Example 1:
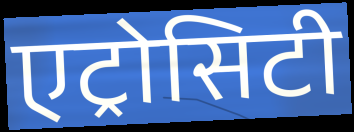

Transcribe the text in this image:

एट्रोसिटी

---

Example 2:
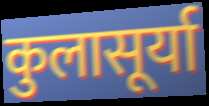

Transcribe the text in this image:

कुलासूर्या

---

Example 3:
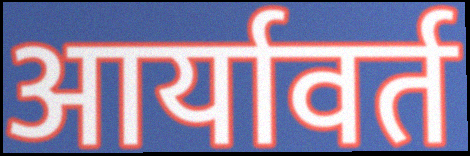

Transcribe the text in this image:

आर्यावर्त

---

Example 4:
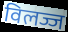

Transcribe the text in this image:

विलज्ज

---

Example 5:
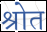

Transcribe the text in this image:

श्रोत